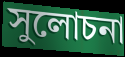
সুলোচনা